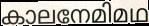
കാലനേമിമഥ